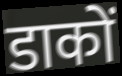
डाकों